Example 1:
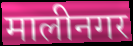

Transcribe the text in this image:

मालीनगर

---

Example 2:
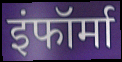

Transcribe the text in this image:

इंफॉर्मा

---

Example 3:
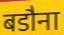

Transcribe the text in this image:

बडौना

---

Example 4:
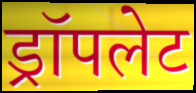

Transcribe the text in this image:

ड्रॉपलेट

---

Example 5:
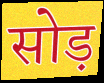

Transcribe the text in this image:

सोड़